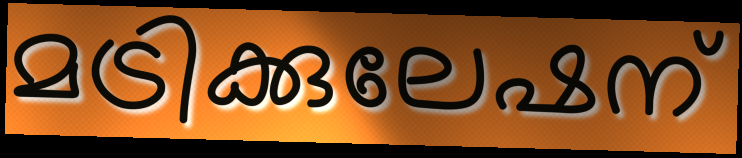
മട്രിക്കുലേഷന്